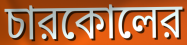
চারকোলের